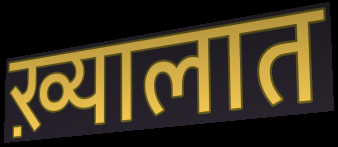
ख़्यालात